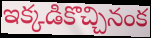
ఇక్కడికొచ్చినంక